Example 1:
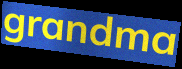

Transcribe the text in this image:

grandma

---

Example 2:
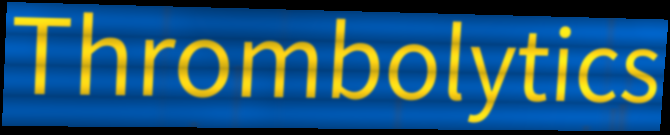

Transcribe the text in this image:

Thrombolytics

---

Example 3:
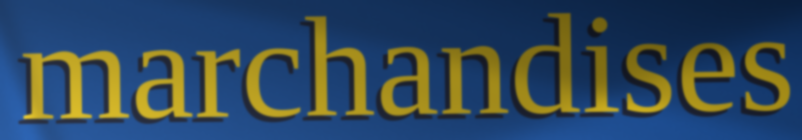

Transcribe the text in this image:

marchandises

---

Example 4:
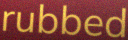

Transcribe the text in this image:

rubbed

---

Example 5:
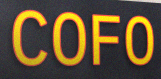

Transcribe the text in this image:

COFO